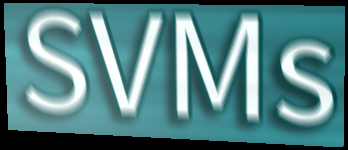
SVMs